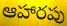
ఆహారపు